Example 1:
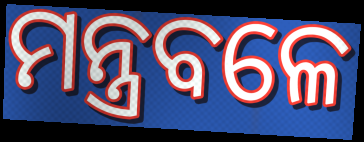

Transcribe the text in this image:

ମନ୍ତ୍ରବଳେ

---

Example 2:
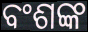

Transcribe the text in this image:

ବଂଶଙ୍କ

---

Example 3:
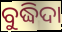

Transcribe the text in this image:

ବୁଦ୍ଧିଦା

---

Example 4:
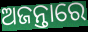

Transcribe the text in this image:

ଅଜନ୍ତାରେ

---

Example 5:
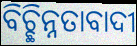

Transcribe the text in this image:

ବିଚ୍ଛିନ୍ନତାବାଦୀ